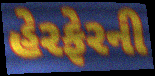
હેરફેરની